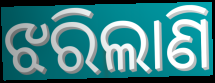
ଝରିଲାଣି